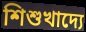
শিশুখাদ্যে